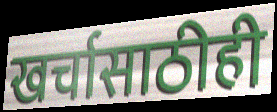
खर्चासाठीही